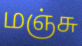
மஞ்சு